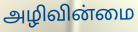
அழிவின்மை